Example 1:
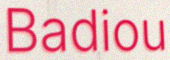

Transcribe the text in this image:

Badiou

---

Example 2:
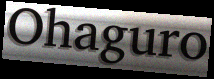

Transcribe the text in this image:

Ohaguro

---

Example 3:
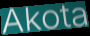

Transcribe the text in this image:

Akota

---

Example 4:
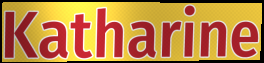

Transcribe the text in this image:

Katharine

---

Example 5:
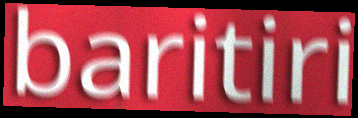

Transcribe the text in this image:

baritiri